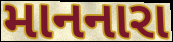
માનનારા